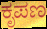
ಕೃಪಣ